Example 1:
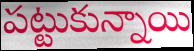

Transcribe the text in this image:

పట్టుకున్నాయి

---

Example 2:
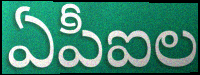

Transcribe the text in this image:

ఏపీఐల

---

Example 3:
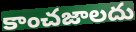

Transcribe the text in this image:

కాంచజాలదు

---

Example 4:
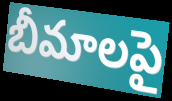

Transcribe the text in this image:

బీమాలపై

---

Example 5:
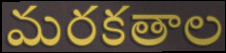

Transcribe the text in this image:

మరకతాల